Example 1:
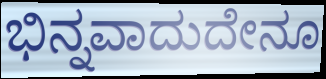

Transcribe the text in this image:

ಭಿನ್ನವಾದುದೇನೂ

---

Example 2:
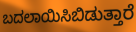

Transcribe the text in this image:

ಬದಲಾಯಿಸಿಬಿಡುತ್ತಾರೆ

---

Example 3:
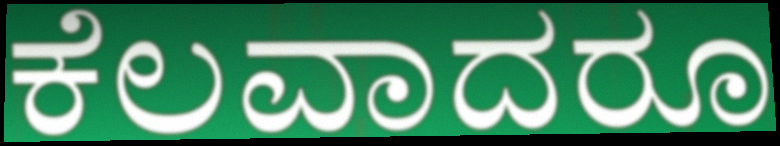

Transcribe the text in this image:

ಕೆಲವಾದರೂ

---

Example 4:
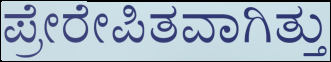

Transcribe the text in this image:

ಪ್ರೇರೇಪಿತವಾಗಿತ್ತು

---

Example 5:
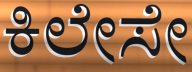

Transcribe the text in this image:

ಕಿಲೇಸೇ